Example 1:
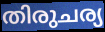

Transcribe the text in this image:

തിരുചര്യ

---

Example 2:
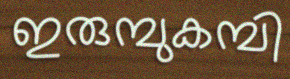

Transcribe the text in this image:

ഇരുമ്പുകമ്പി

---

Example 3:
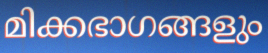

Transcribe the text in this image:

മിക്കഭാഗങ്ങളും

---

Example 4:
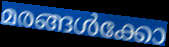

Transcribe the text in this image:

മരങ്ങൾക്കോ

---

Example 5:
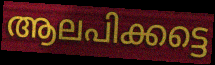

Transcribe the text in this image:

ആലപിക്കട്ടെ